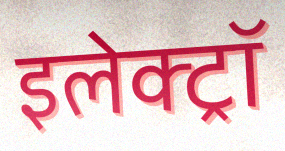
इलेक्ट्रॉ